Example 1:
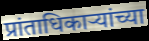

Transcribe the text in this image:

प्रांताधिकाऱ्यांच्या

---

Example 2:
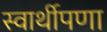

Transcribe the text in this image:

स्वार्थीपणा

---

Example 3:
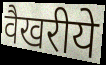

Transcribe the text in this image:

वैखरीये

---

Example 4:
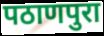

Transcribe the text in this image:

पठाणपुरा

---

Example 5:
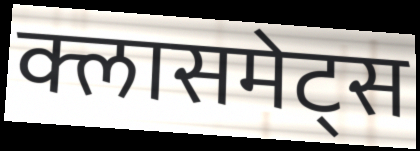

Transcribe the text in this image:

क्लासमेट्स